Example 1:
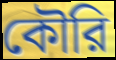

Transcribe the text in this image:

কৌরি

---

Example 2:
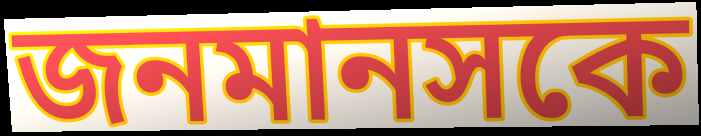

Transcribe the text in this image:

জনমানসকে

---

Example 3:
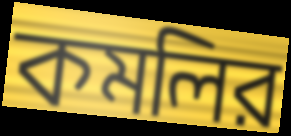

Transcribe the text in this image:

কমলির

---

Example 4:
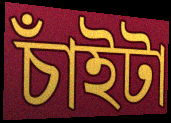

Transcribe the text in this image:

চাঁইটা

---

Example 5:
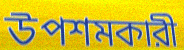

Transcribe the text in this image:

উপশমকারী